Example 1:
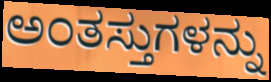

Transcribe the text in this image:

ಅಂತಸ್ತುಗಳನ್ನು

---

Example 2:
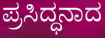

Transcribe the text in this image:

ಪ್ರಸಿದ್ಧನಾದ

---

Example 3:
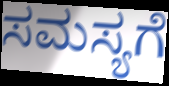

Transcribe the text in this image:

ಸಮಸ್ಯಗೆ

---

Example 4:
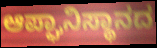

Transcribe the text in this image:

ಆಪ್ಘಾನಿಸ್ಥಾನದ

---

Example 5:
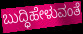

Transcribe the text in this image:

ಬುದ್ಧಿಹೇಳುವಂತೆ